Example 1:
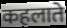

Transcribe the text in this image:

कहलाते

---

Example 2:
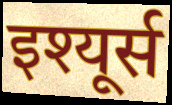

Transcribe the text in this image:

इश्यूर्स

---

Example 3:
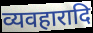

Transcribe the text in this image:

व्यवहारादि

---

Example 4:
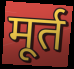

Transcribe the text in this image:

मूर्त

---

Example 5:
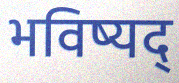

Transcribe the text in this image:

भविष्यद्